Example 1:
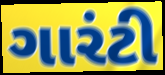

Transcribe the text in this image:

ગારંટી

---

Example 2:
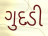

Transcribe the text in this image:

ગુદડી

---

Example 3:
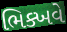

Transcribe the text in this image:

ભિક્ખવે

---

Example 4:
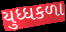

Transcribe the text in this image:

યુધ્ધકળા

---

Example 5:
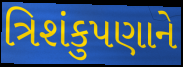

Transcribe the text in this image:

ત્રિશંકુપણાને